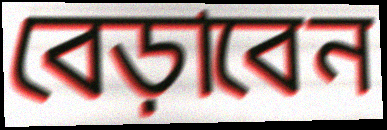
বেড়াবেন